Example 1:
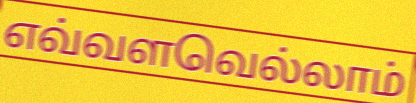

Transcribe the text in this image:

எவ்வளவெல்லாம்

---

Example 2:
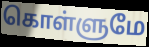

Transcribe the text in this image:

கொள்ளுமே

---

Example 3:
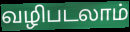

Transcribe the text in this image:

வழிபடலாம்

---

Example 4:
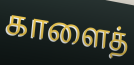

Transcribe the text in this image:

காளைத்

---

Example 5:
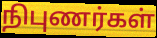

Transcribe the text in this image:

நிபுணர்கள்